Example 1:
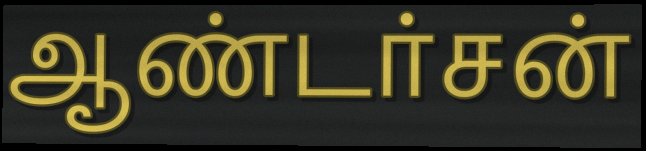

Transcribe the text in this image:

ஆண்டர்சன்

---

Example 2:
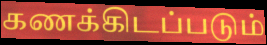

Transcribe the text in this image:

கணக்கிடப்படும்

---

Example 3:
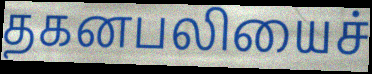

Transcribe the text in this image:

தகனபலியைச்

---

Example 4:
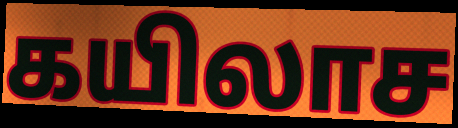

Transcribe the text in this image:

கயிலாச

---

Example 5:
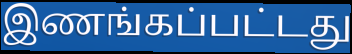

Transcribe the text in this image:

இணங்கப்பட்டது